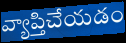
వ్యాప్తిచేయడం